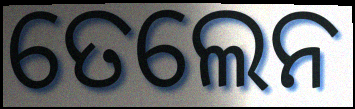
ତେଲେନ